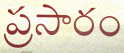
ప్రసారం